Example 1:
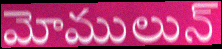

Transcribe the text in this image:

మోములున్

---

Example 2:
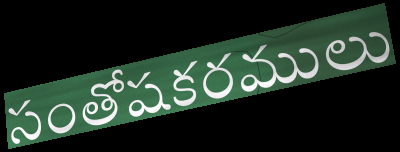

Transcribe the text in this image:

సంతోషకరములు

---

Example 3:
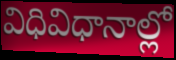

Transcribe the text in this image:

విధివిధానాల్లో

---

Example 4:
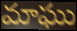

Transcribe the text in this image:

మాఘు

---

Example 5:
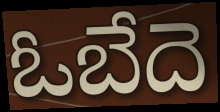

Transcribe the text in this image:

ఓబేదె